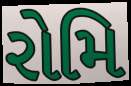
રોમિ